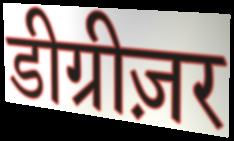
डीग्रीज़र